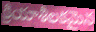
క్రియాశీలకమైన